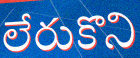
లేరుకొని